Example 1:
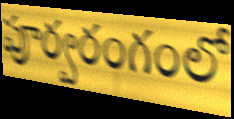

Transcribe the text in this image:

పూర్వరంగంలో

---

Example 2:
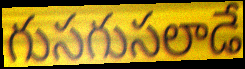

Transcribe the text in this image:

గుసగుసలాడే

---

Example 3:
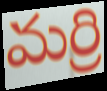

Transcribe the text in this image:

మర్రి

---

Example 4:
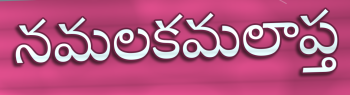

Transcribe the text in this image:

నమలకమలాప్త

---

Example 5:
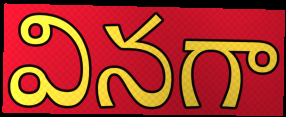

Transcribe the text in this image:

వినగా